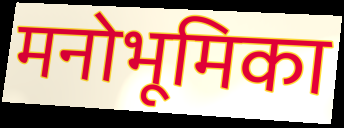
मनोभूमिका